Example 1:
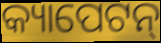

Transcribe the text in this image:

କ୍ୟାପେଟନ୍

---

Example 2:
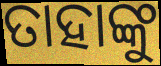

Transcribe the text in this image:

ତାହାଙ୍କୁ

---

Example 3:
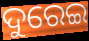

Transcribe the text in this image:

ଦୁରେଇ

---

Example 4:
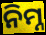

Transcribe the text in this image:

ନିମ୍ନ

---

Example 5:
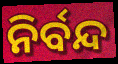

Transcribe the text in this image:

ନିର୍ବନ୍ଦ